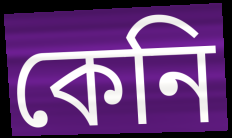
কেনি